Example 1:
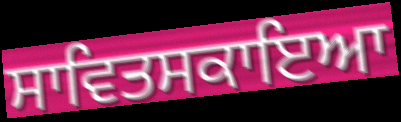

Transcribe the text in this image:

ਸਾਵਿਤਸਕਾਇਆ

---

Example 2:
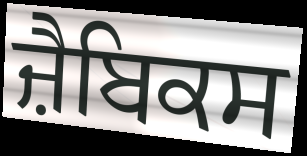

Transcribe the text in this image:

ਜ਼ੈਬਿਕਸ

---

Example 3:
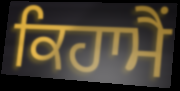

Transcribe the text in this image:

ਕਿਹਾਮੈਂ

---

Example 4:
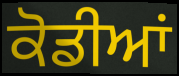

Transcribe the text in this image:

ਕੋਡੀਆਂ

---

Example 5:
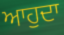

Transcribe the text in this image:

ਆਹੁਦਾ